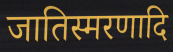
जातिस्मरणादि